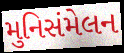
મુનિસંમેલન